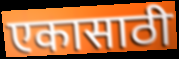
एकासाठी